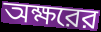
অক্ষরের